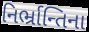
નિર્ભ્રાન્તિના